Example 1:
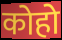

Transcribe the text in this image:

कोहो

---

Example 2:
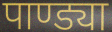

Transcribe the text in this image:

पाण्ड्या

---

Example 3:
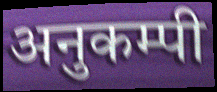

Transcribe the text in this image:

अनुकम्पी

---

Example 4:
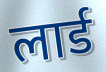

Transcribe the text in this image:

लार्ड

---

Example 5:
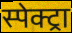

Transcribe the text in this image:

स्पेक्ट्रा